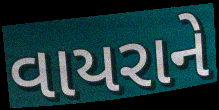
વાયરાને